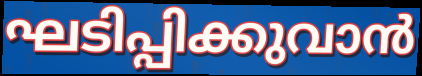
ഘടിപ്പിക്കുവാൻ